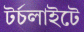
টর্চলাইটে